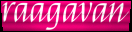
raagavan